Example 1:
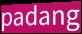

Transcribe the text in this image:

padang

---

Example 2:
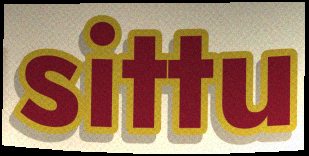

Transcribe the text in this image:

sittu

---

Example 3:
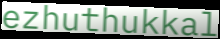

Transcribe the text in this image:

ezhuthukkal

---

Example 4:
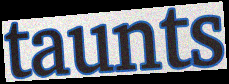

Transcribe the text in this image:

taunts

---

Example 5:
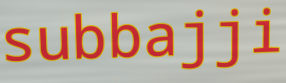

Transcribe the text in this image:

subbajji